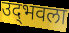
उद्‌भवला